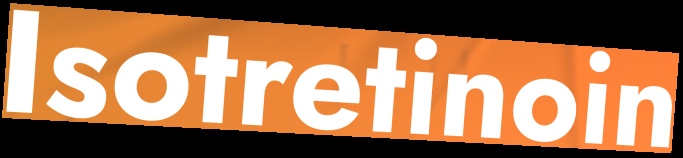
Isotretinoin